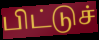
பிட்டுச்